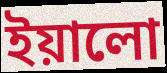
ইয়ালো